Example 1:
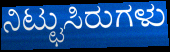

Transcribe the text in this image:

ನಿಟ್ಟುಸಿರುಗಳು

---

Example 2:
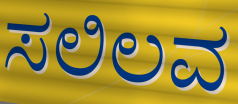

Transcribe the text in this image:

ಸಲಿಲವ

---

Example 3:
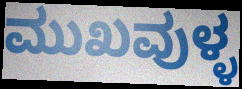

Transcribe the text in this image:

ಮುಖವುಳ್ಳ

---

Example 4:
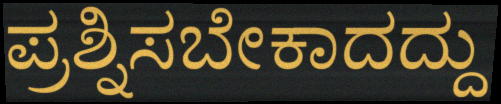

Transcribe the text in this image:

ಪ್ರಶ್ನಿಸಬೇಕಾದದ್ದು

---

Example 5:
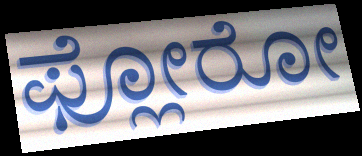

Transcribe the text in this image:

ಫ್ಲೋರೋ